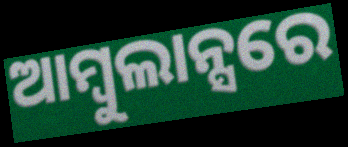
ଆମ୍ବୁଲାନ୍ସରେ